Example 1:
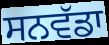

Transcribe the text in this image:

ਸਨਵੱਡਾ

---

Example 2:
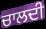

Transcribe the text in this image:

ਚਾਲਦੀ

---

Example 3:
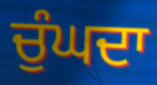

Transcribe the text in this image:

ਚੁੰਘਦਾ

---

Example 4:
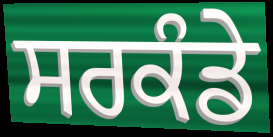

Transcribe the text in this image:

ਸਰਕੰਡੇ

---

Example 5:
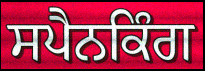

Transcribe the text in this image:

ਸਪੈਨਕਿੰਗ